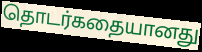
தொடர்கதையானது